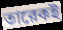
তারেকই